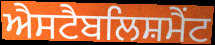
ਐਸਟੈਬਲਿਸ਼ਮੈਂਟ